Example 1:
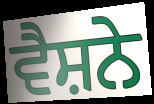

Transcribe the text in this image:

ਵੈਸ਼ਨੇ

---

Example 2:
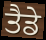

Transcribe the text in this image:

ਤੈਡੇ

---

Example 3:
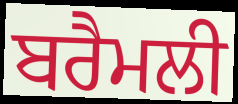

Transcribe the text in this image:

ਬਰੈਮਲੀ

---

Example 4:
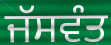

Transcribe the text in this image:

ਜੱਸਵੰਤ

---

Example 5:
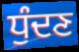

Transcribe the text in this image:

ਧੁੰਦਣ